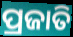
ପ୍ରଜାତି